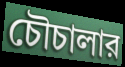
চৌচালার